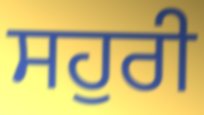
ਸਹੁਰੀ